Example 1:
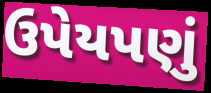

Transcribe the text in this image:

ઉપેયપણું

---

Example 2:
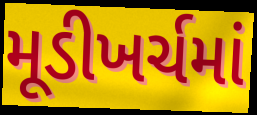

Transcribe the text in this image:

મૂડીખર્ચમાં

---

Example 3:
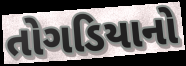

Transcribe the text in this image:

તોગડિયાનો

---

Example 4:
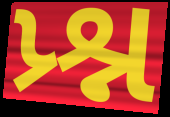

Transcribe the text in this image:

પ્ર્શ્ન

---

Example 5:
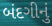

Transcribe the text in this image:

બંદગીનું